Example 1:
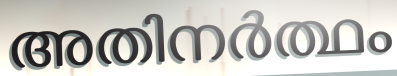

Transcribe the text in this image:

അതിനർത്ഥം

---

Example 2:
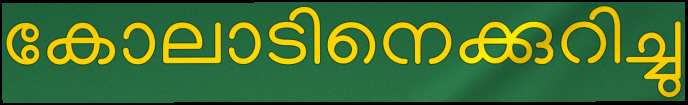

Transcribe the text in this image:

കോലാടിനെക്കുറിച്ചു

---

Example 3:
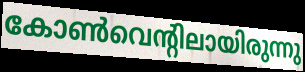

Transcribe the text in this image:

കോൺവെന്റിലായിരുന്നു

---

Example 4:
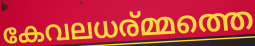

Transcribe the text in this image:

കേവലധര്മ്മത്തെ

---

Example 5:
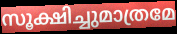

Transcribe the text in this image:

സൂക്ഷിച്ചുമാത്രമേ